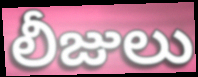
లీజులు